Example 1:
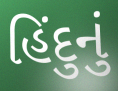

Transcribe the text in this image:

હિંદુનું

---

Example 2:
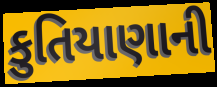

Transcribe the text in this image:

કુતિયાણાની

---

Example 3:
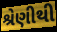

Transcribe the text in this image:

શ્રેણીથી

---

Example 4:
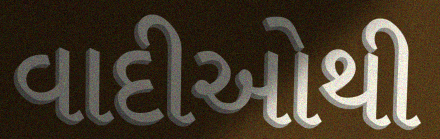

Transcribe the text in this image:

વાદીઓથી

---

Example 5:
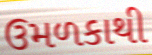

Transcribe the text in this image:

ઉમળકાથી